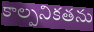
కాల్పనికతను